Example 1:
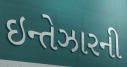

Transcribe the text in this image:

ઇન્તેઝારની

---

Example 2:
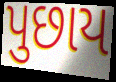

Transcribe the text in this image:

પુછાય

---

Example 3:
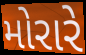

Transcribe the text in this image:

મોરારે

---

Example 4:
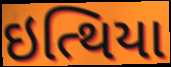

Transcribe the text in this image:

ઇત્થિયા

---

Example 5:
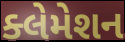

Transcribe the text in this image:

ક્લેમેશન